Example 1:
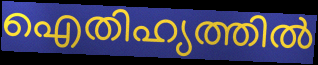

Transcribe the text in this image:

ഐതിഹ്യത്തിൽ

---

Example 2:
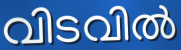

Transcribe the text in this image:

വിടവിൽ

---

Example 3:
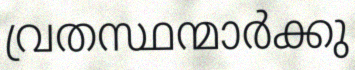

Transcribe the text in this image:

വ്രതസ്ഥന്മാർക്കു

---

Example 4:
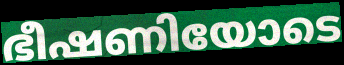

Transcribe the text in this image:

ഭീഷണിയോടെ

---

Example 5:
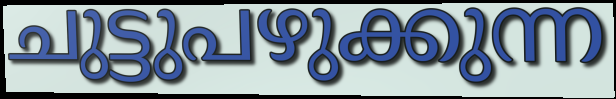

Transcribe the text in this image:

ചുട്ടുപഴുക്കുന്ന